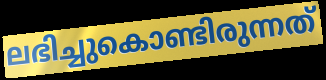
ലഭിച്ചുകൊണ്ടിരുന്നത്